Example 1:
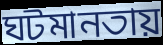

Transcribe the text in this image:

ঘটমানতায়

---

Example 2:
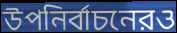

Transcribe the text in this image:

উপনির্বাচনেরও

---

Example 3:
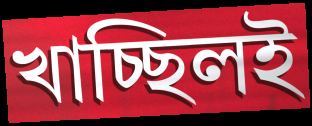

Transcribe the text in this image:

খাচ্ছিলই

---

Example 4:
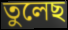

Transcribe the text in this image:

তুলেছ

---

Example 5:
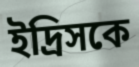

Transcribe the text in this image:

ইদ্রিসকে